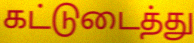
கட்டுடைத்து